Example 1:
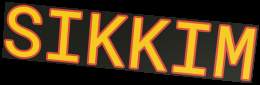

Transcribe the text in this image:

SIKKIM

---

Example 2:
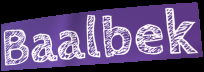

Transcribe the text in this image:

Baalbek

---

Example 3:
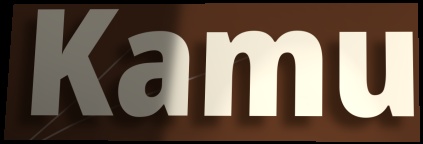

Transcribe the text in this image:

Kamu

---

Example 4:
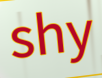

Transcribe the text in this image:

shy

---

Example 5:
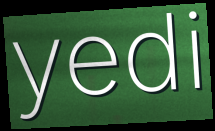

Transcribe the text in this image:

yedi